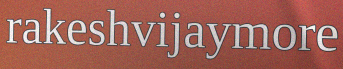
rakeshvijaymore